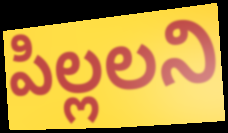
పిల్లలని